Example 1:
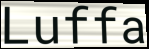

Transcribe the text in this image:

Luffa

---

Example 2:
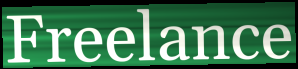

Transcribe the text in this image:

Freelance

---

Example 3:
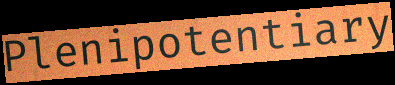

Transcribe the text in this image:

Plenipotentiary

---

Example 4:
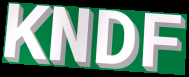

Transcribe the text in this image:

KNDF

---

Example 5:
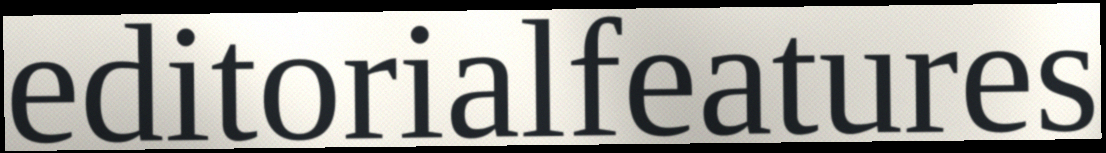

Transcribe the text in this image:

editorialfeatures